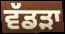
ਵੱਡਡ਼ਾ